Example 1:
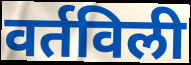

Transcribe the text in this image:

वर्तविली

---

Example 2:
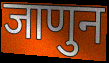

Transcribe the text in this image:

जाणुन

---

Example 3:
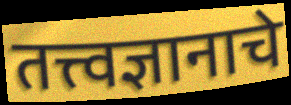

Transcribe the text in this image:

तत्त्वज्ञानाचे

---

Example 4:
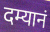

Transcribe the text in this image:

दम्यानं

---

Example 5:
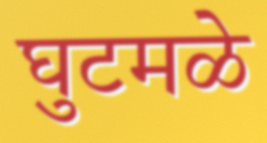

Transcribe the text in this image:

घुटमळे